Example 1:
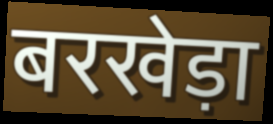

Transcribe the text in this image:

बरखेड़ा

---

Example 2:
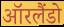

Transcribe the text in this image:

ऑरलैंडो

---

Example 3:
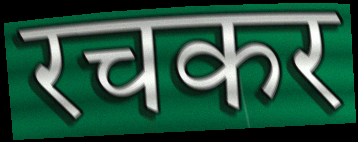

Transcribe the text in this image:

रचकर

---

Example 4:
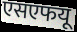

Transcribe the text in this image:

एसएफयू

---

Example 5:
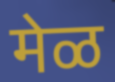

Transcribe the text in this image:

मेळ